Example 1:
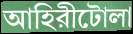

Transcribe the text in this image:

আহিরীটোলা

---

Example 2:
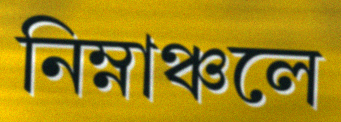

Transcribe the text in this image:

নিম্নাঞ্চলে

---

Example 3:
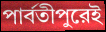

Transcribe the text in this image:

পার্বতীপুরেই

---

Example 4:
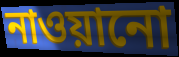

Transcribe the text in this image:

নাওয়ানো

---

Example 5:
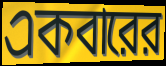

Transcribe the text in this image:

একবারের